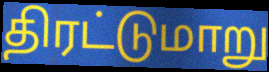
திரட்டுமாறு